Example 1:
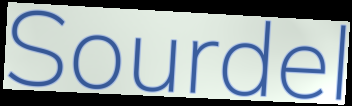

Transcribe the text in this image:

Sourdel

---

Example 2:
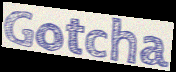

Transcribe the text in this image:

Gotcha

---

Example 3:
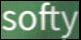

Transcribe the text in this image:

softy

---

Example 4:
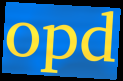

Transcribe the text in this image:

opd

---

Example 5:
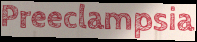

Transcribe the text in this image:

Preeclampsia